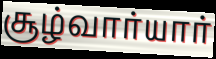
சூழ்வார்யார்